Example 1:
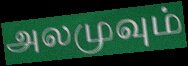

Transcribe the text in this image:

அலமுவும்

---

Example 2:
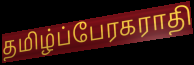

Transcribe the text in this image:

தமிழ்ப்பேரகராதி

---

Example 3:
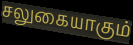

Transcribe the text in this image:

சலுகையாகும்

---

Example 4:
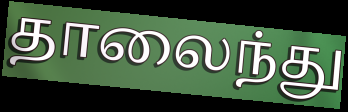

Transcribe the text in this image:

தாலைந்து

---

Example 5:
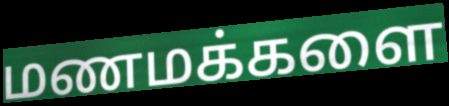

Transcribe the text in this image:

மணமக்களை